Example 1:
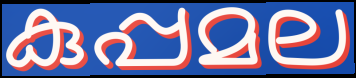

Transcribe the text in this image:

കുപ്പമല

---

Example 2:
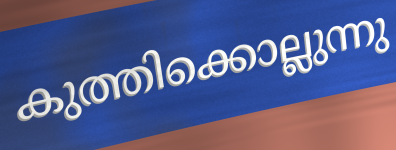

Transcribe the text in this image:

കുത്തിക്കൊല്ലുന്നു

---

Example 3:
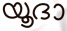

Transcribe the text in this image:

യൂദാ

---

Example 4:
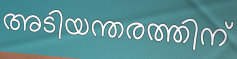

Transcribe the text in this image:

അടിയന്തരത്തിന്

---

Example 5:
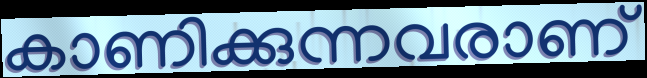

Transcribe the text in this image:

കാണിക്കുന്നവരാണ്